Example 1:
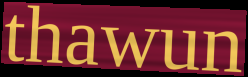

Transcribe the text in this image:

thawun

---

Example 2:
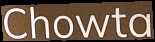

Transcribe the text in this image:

Chowta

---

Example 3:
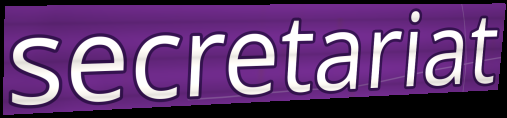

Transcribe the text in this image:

secretariat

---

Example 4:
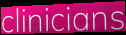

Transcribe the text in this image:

clinicians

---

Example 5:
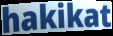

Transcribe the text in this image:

hakikat